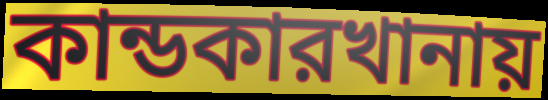
কান্ডকারখানায়